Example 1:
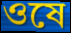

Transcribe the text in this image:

ওষে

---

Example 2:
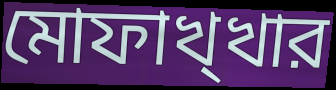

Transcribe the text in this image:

মোফাখ্খার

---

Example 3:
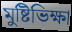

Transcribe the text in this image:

মুষ্টিভিক্ষা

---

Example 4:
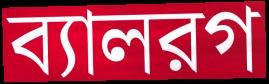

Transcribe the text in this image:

ব্যালরগ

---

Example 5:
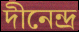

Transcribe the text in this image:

দীনেন্দ্র